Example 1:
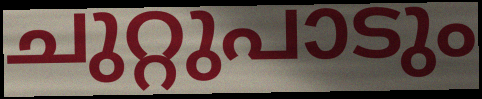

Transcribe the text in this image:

ചുറ്റുപാടും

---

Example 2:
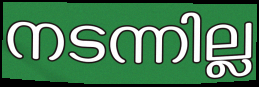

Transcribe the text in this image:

നടന്നില്ല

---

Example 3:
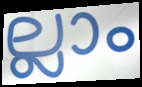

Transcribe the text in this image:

ല്ലാം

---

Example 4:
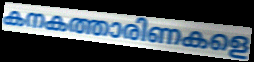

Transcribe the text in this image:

കനകത്താരിണകളെ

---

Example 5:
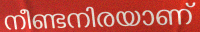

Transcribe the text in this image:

നീണ്ടനിരയാണ്